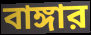
বাঙ্গার